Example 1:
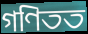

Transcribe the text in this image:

গণিতত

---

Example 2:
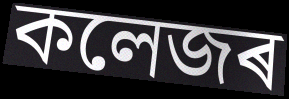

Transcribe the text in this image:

কলেজৰ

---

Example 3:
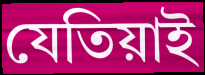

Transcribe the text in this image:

যেতিয়াই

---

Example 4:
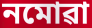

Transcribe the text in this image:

নমোৱা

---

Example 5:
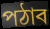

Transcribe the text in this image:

পঠাব